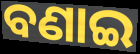
ବଣାଇ